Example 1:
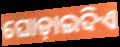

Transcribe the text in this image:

ଘୋଡ଼ାଇଦିଏ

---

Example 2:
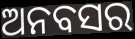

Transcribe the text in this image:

ଅନବସର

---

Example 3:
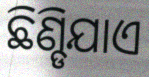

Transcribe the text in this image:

ଛିଣ୍ଡିଯାଏ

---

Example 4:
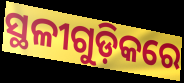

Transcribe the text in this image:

ସ୍ଥଳୀଗୁଡ଼ିକରେ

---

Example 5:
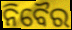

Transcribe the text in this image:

ନିବୈର